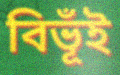
বিভূঁই